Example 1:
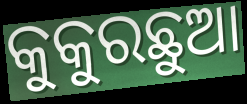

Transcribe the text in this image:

କୁକୁରଛୁଆ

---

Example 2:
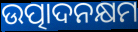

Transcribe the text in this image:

ଉତ୍ପାଦନକ୍ଷମ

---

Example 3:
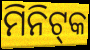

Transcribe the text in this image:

ମିନିଟ୍‌କ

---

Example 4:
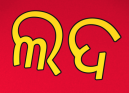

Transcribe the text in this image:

ଲଦ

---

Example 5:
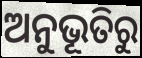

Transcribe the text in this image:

ଅନୁଭୂତିରୁ